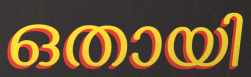
ഒതായി